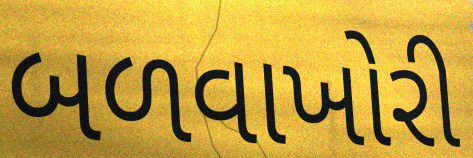
બળવાખોરી